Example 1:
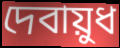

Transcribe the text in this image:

দেবায়ুধ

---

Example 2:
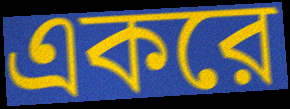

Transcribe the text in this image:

একরে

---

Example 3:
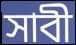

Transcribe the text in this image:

সাবী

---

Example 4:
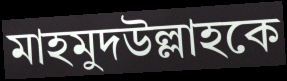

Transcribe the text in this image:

মাহমুদউল্লাহকে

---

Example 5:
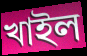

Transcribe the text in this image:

খাইল